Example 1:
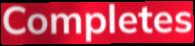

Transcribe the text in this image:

Completes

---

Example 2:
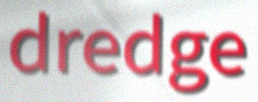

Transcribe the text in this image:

dredge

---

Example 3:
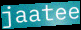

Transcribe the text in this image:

jaatee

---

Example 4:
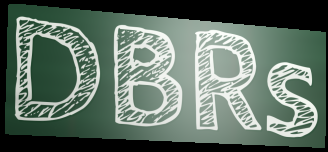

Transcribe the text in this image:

DBRs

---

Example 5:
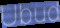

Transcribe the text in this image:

Ubud